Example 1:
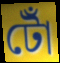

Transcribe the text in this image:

টোঁ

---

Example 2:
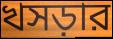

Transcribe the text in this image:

খসড়ার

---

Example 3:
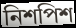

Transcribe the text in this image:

নিশপিশ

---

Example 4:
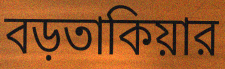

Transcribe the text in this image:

বড়তাকিয়ার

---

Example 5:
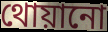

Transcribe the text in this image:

থোয়ানো